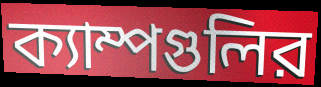
ক্যাম্পগুলির